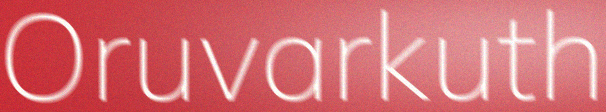
Oruvarkuth